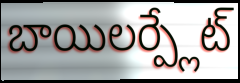
బాయిలర్ప్లేట్